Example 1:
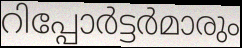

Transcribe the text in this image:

റിപ്പോർട്ടർമാരും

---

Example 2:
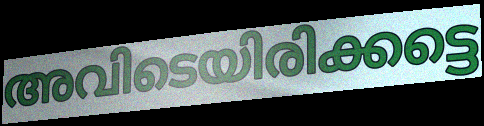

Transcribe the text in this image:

അവിടെയിരിക്കട്ടെ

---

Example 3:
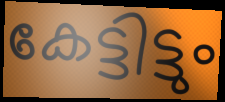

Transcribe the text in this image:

കേട്ടിട്ടും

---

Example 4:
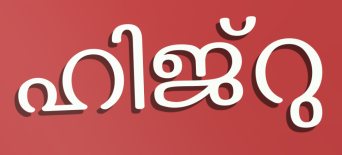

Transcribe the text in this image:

ഹിജ്റു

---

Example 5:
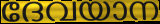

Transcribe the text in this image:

ദേവയാന